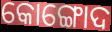
କୋଙ୍ଗୋଦ